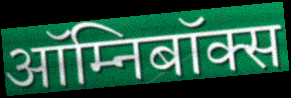
ऑम्निबॉक्स